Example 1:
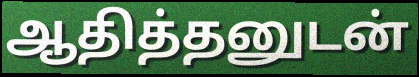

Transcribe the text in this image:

ஆதித்தனுடன்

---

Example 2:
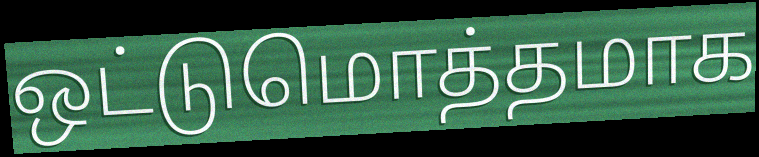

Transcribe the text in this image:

ஒட்டுமொத்தமாக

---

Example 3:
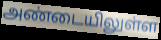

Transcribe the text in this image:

அண்டையிலுள்ள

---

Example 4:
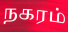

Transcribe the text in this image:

நகரம்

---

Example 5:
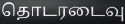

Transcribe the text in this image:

தொடரடைவு